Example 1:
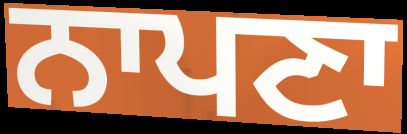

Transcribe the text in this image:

ਨਾਪਣਾ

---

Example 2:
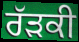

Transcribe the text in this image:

ਰੱੜਕੀ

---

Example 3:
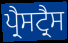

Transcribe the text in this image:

ਪ੍ਰੈਸਟ੍ਰੈਸ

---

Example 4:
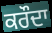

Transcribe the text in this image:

ਕਰੌਦਾ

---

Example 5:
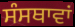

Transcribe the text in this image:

ਸੰਸਥਾਵਾਂ